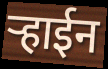
ऱ्हाईन